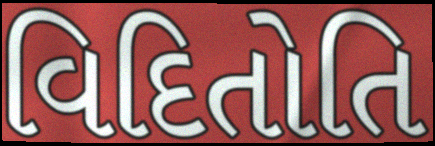
વિદિતોતિ